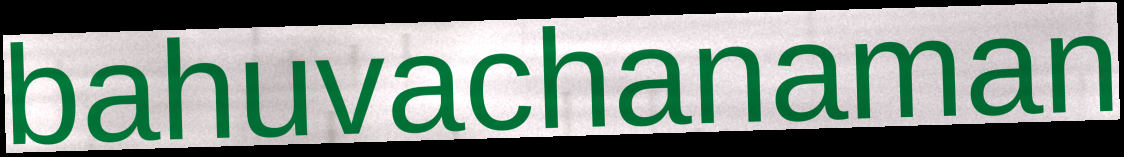
bahuvachanaman